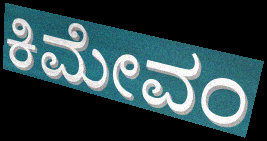
ಕಿಮೇವಂ